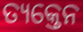
ତ୍ୟକ୍ତେନ